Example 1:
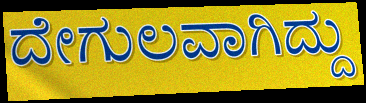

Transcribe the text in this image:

ದೇಗುಲವಾಗಿದ್ದು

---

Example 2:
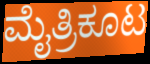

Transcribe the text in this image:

ಮೈತ್ರಿಕೂಟ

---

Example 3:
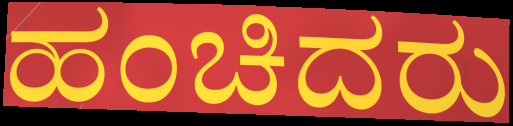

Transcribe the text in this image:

ಹಂಚಿದರು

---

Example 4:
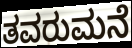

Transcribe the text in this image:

ತವರುಮನೆ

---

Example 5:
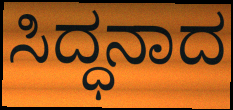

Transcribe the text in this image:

ಸಿದ್ಧನಾದ